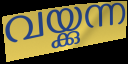
വയ്ക്കുന്ന